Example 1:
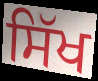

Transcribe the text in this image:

ਸਿੱਖ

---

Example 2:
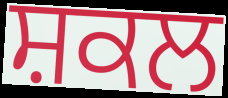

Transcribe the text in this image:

ਸ਼ਕਲ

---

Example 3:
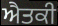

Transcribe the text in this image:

ਐਤਕੀ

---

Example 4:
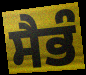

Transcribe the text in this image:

ਸੈਭੰ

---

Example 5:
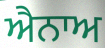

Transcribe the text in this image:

ਐਨਾਅ